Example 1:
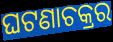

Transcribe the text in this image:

ଘଟଣାଚକ୍ରର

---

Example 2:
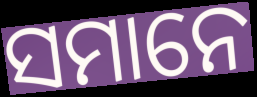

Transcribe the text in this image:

ସମାନେ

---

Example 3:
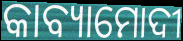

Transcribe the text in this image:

କାବ୍ୟାମୋଦୀ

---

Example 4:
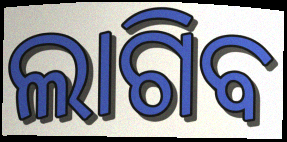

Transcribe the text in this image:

ଲାଗିବ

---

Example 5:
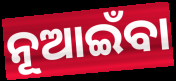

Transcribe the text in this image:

ନୂଆଇଁବା